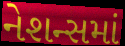
નેશન્સમાં